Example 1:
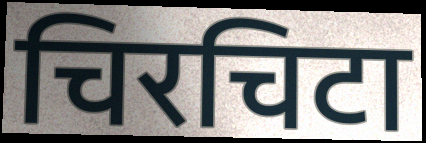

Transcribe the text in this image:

चिरचिटा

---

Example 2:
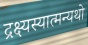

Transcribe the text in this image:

द्रक्ष्यस्यात्मन्यथो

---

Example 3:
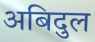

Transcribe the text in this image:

अबिदुल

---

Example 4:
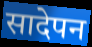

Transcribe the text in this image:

सादेपन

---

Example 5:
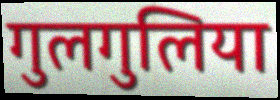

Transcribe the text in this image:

गुलगुलिया